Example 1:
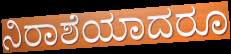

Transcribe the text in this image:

ನಿರಾಶೆಯಾದರೂ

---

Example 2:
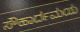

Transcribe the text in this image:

ಸೌಹಾರ್ದಮಯ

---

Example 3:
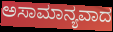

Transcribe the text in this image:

ಅಸಾಮಾನ್ಯವಾದ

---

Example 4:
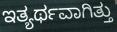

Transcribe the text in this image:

ಇತ್ಯರ್ಥವಾಗಿತ್ತು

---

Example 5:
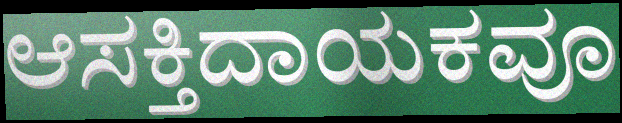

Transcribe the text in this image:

ಆಸಕ್ತಿದಾಯಕವೂ